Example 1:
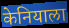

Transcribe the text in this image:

केनियाला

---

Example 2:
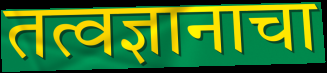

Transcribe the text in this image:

तत्वज्ञानाचा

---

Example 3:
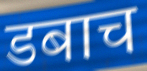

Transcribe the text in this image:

डबाच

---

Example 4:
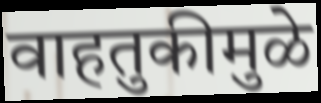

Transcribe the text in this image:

वाहतुकीमुळे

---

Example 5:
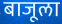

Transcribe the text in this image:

बाजूला